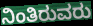
ನಿಂತಿರುವರು